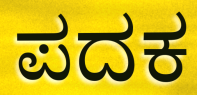
ಪದಕ